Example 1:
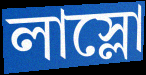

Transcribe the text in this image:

লাস্লো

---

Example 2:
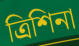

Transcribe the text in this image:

ত্রিশিনা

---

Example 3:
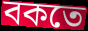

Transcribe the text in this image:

বকতে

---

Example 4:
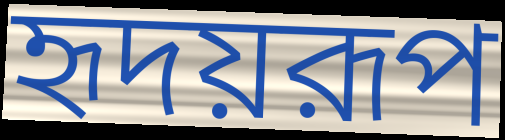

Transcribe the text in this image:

হৃদয়রূপ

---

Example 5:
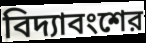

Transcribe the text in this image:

বিদ্যাবংশের